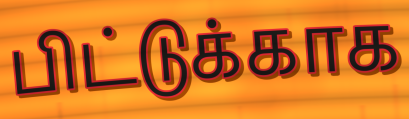
பிட்டுக்காக